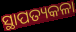
ସ୍ଥାପତ୍ୟକଳା